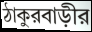
ঠাকুরবাড়ীর